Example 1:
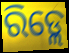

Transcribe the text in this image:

ରିଡ୍ଲେ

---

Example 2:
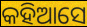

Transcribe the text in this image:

କହିଆସେ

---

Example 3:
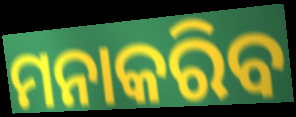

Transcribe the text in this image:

ମନାକରିବ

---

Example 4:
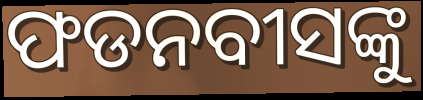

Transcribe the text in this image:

ଫଡନବୀସଙ୍କୁ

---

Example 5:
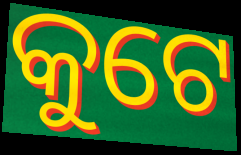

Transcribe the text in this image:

କୁଟେ